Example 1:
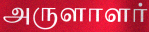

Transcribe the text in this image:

அருளாளர்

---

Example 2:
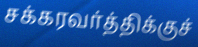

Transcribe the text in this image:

சக்கரவர்த்திக்குச்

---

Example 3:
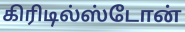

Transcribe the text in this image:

கிரிடில்ஸ்டோன்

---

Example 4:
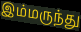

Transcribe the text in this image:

இம்மருந்து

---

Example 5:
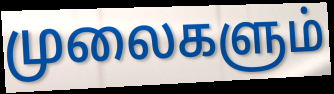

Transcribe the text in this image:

முலைகளும்